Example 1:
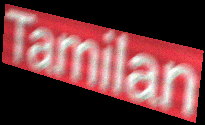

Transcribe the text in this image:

Tamilan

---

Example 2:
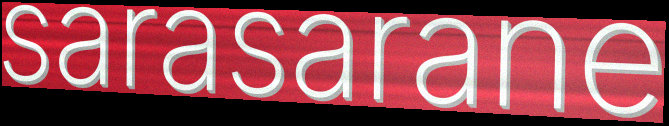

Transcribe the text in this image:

sarasarane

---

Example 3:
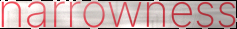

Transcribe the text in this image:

narrowness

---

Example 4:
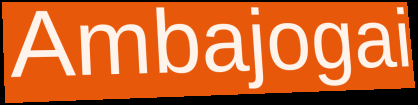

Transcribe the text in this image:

Ambajogai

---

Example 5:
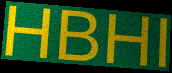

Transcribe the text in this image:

HBHI